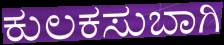
ಕುಲಕಸುಬಾಗಿ